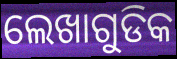
ଲେଖାଗୁଡିକ